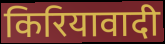
किरियावादी